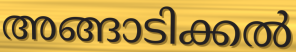
അങ്ങാടിക്കൽ